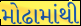
મોઢામાંથી